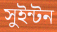
সুইন্টন